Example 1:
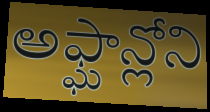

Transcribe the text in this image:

అఫ్ఘాన్లోని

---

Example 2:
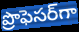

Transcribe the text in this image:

ప్రొఫెసర్‌గా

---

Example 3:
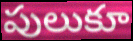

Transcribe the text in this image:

పులుకూ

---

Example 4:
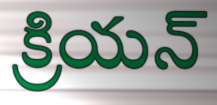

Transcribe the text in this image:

క్రియన్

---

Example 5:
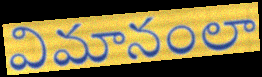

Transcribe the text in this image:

విమానంలా